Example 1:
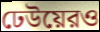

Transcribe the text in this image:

ঢেউয়েরও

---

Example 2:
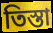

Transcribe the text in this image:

তিস্তা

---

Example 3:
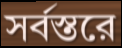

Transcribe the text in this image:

সর্বস্তরে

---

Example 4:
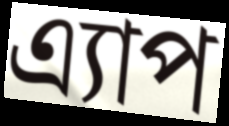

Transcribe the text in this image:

এ্যাপ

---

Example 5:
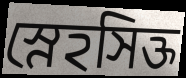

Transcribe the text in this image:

স্নেহসিক্ত